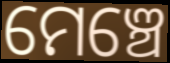
ମେଞ୍ଚେ